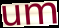
um